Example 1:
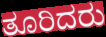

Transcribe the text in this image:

ತೂರಿದರು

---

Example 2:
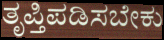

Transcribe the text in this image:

ತೃಪ್ತಿಪಡಿಸಬೇಕು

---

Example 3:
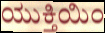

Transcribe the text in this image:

ಯುಕ್ತಿಯಿಂ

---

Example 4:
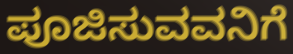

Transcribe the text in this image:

ಪೂಜಿಸುವವನಿಗೆ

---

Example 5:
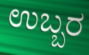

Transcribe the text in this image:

ಉಬ್ಬರ